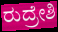
ರುದ್ರೇಶಿ